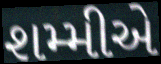
શમ્મીએ